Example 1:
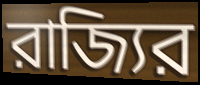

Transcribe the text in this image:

রাজ্যির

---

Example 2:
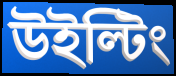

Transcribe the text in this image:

উইল্টিং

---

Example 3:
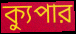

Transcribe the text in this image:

ক্যুপার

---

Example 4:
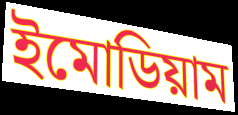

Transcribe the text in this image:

ইমোডিয়াম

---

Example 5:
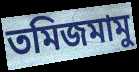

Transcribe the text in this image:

তমিজমামু